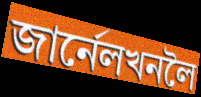
জাৰ্নেলখনলৈ